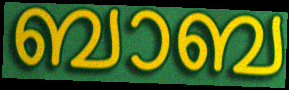
ബാബ